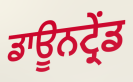
ਡਾਊਨਟ੍ਰੇਂਡ